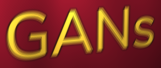
GANs